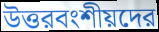
উত্তরবংশীয়দের